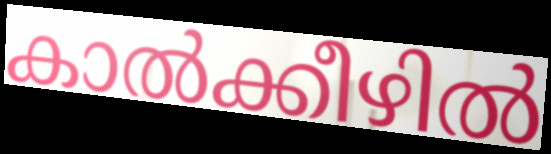
കാൽക്കീഴിൽ